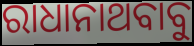
ରାଧାନାଥବାବୁ